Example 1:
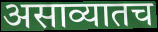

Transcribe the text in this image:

असाव्यातच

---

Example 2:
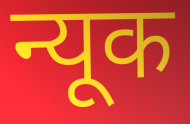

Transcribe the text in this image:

न्यूक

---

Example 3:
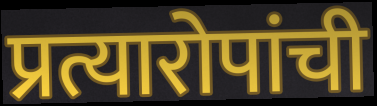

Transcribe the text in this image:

प्रत्यारोपांची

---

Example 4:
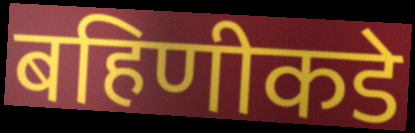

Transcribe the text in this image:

बहिणीकडे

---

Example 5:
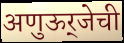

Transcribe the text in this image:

अणुऊर्जेची